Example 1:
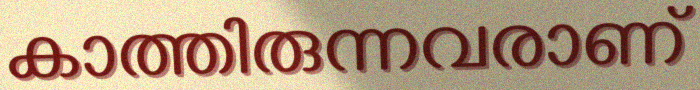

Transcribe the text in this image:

കാത്തിരുന്നവരാണ്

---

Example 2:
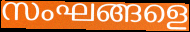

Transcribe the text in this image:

സംഘങ്ങളെ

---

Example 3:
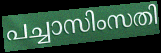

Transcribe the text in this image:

പച്ചാസിംസതി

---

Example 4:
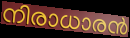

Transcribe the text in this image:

നിരാധാരൻ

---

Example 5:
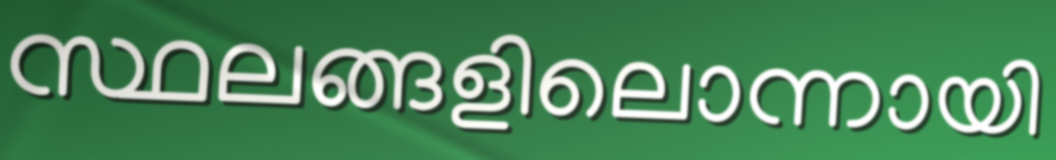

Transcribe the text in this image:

സ്ഥലങ്ങളിലൊന്നായി